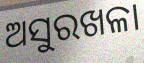
ଅସୁରଖଳା